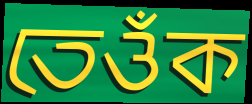
তেওঁক